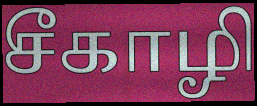
சீகாழி